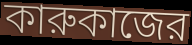
কারুকাজের